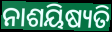
ନାଶୟିଷ୍ୟତି